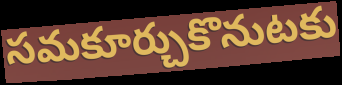
సమకూర్చుకొనుటకు